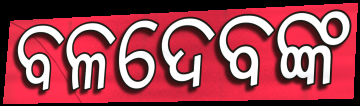
ବଳଦେବଙ୍କ